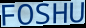
FOSHU